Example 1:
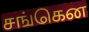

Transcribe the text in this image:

சங்கென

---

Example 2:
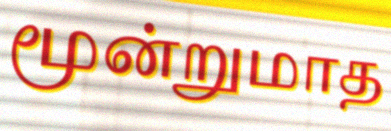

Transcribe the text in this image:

மூன்றுமாத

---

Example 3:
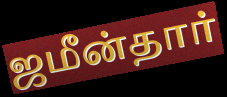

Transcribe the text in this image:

ஜமீன்தார்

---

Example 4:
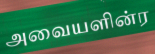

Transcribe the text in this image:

அவையளின்ர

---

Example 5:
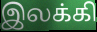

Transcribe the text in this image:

இலக்கி